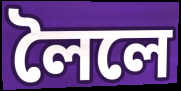
লৈলে